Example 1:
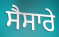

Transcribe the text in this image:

ਸੈਸਾਰੇ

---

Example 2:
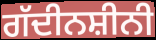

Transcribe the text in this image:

ਗੱਦੀਨਸ਼ੀਨੀ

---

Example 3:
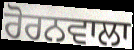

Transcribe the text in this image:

ਰੋਰਨਵਾਲਾ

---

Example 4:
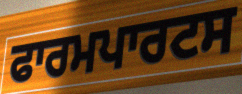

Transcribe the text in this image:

ਫਾਰਮਪਾਰਟਸ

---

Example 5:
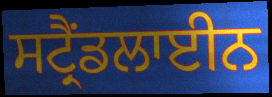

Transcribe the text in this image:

ਸਟ੍ਰੈਂਡਲਾਈਨ